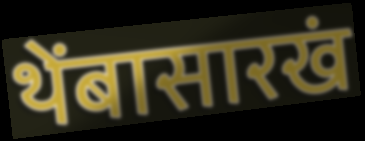
थेंबासारखं